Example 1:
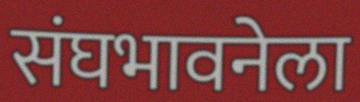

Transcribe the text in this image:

संघभावनेला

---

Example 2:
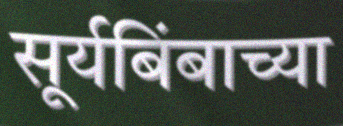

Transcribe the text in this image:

सूर्यबिंबाच्या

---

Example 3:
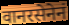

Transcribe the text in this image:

वानरसेनेनं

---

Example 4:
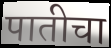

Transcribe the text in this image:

पातीचा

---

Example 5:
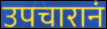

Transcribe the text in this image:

उपचारानं